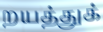
றயத்துக்